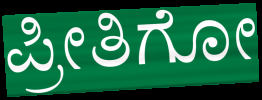
ಪ್ರೀತಿಗೋ